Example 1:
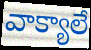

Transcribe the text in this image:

వాక్యాలే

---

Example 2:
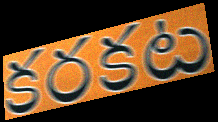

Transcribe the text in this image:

కరకట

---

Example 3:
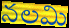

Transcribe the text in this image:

నలమి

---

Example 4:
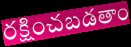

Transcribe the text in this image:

రక్షించబడతాం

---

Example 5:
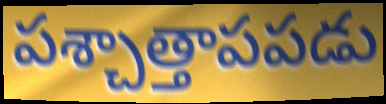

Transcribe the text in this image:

పశ్చాత్తాపపడు